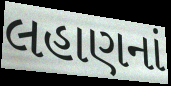
લહાણનાં